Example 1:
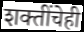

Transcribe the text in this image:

शक्तींचेही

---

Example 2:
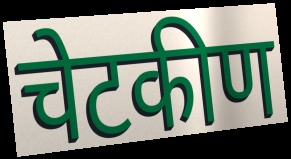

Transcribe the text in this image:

चेटकीण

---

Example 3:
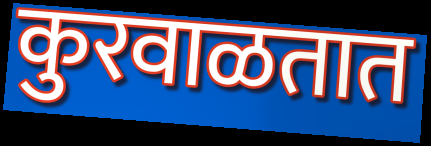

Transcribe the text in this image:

कुरवाळतात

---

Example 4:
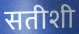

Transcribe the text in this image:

सतीशी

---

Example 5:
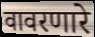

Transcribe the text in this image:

वावरणारे